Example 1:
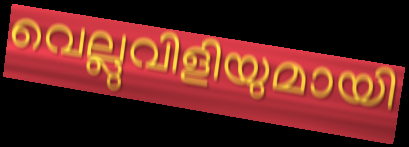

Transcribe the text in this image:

വെല്ലുവിളിയുമായി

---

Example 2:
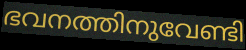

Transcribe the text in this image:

ഭവനത്തിനുവേണ്ടി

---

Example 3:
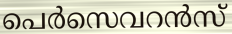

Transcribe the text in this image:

പെർസെവറൻസ്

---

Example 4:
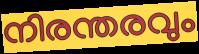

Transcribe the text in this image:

നിരന്തരവും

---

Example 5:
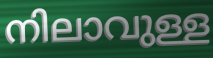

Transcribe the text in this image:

നിലാവുള്ള